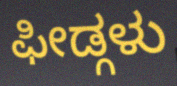
ಫೀಡ್ಗಳು